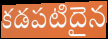
కడపటిదైన